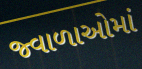
જ્વાળાઓમાં